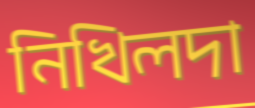
নিখিলদা